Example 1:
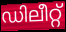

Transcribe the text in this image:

ഡിലീറ്റ്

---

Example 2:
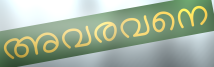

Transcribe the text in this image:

അവരവനെ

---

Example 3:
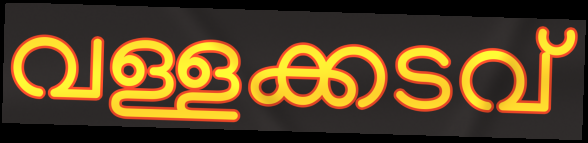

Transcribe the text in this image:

വള്ളക്കടവ്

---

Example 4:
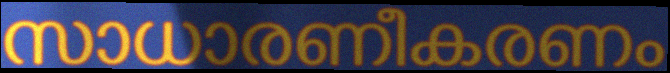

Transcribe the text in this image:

സാധാരണീകരണം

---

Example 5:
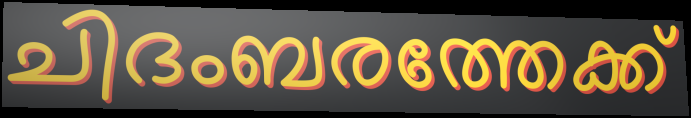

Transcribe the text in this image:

ചിദംബരത്തേക്ക്